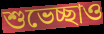
শুভেচ্ছাও